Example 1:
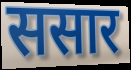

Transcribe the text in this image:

ससार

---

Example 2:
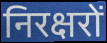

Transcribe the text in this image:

निरक्षरों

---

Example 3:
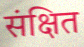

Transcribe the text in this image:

संक्षित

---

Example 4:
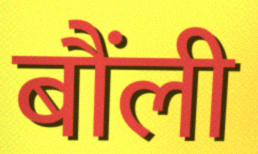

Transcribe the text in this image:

बौंली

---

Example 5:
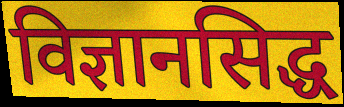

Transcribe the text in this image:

विज्ञानसिद्ध